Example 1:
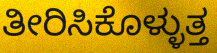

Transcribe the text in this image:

ತೀರಿಸಿಕೊಳ್ಳುತ್ತ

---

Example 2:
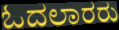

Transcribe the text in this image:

ಓದಲಾರರು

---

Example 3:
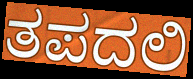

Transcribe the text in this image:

ತಪದಲಿ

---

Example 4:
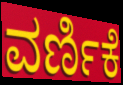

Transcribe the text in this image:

ವರ್ಣಿಕೆ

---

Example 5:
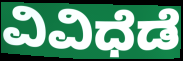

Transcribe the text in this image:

ವಿವಿಧೆಡೆ